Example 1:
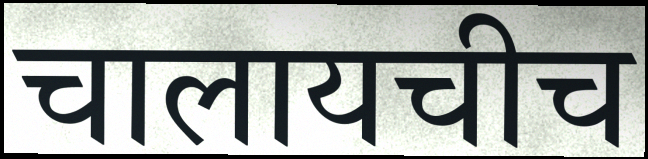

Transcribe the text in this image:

चालायचीच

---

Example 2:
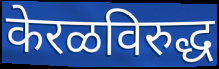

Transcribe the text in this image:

केरळविरुद्ध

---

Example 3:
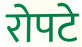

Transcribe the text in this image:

रोपटे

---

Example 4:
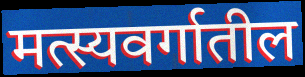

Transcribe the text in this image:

मत्स्यवर्गातील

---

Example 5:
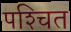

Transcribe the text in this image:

पश्चित